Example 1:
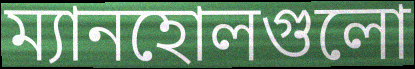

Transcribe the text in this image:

ম্যানহোলগুলো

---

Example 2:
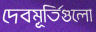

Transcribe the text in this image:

দেবমূর্তিগুলো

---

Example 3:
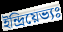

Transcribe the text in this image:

ইন্দ্রিয়েভ্যঃ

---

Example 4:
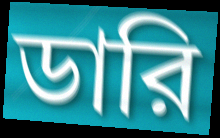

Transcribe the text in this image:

ডারি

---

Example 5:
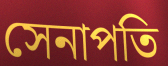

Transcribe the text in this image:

সেনাপতি